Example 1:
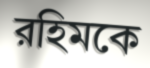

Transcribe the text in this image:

রহিমকে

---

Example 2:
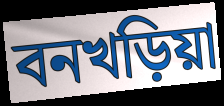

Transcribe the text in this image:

বনখড়িয়া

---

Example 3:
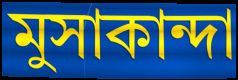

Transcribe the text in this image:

মুসাকান্দা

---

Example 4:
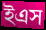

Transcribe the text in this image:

ইএস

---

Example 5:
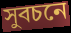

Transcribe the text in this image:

সুবচনে